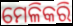
ମେଳିକରି